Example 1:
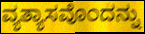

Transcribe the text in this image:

ವ್ಯತ್ಯಾಸವೊಂದನ್ನು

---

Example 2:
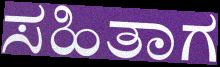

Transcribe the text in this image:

ಸಹಿತಾಗ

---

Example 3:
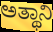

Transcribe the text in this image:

ಅತ್ಥಾನಿ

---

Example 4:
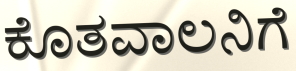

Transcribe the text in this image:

ಕೊತವಾಲನಿಗೆ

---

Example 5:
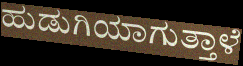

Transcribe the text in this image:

ಹುಡುಗಿಯಾಗುತ್ತಾಳೆ